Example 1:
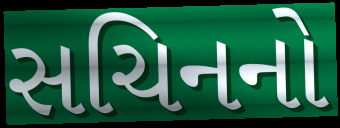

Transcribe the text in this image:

સચિનનો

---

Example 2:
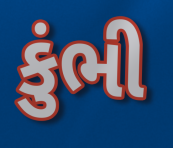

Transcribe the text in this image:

કુંભી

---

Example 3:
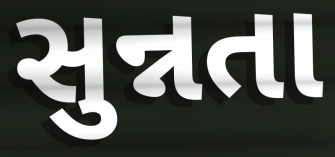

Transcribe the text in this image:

સુન્નતા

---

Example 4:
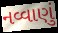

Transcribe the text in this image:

નવ્વાણું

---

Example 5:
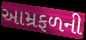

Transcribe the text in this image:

આમ્રફળની